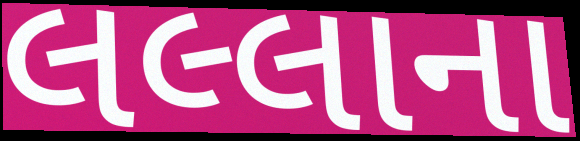
લલ્લાના